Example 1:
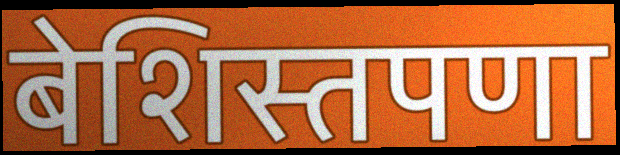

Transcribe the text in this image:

बेशिस्तपणा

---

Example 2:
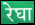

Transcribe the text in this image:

रेघा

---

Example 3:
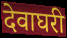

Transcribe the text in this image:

देवाघरी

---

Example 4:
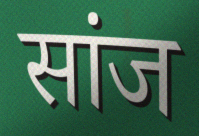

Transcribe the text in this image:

सांज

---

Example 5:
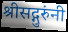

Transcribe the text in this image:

श्रीसद्गुरुंनी